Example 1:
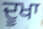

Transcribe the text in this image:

ਦੂਖਾ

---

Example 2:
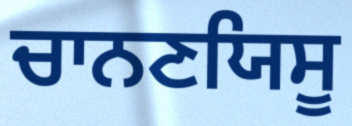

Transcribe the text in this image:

ਚਾਨਣਯਿਸੂ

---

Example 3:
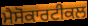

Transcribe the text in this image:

ਮੈਸੋਕਾਰਟੀਕਲ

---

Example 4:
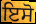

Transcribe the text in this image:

ਇਸੋ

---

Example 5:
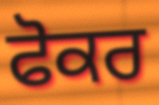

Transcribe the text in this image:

ਫੋਕਰ